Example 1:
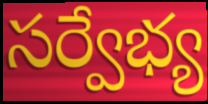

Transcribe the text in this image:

సర్వేభ్య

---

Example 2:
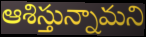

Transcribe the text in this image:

ఆశిస్తున్నామని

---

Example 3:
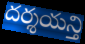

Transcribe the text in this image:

దర్శయన్తి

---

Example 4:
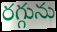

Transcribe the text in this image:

రగ్గును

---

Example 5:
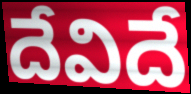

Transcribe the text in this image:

దేవిదే